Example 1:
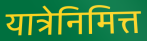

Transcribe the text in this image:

यात्रेनिमित्त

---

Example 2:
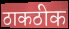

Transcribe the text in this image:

ठाकठीक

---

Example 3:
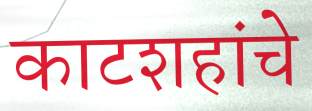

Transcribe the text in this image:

काटशहांचे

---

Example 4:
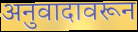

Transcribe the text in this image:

अनुवादावरून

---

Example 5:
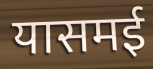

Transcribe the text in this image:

यासमई